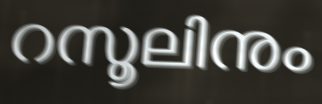
റസൂലിനും